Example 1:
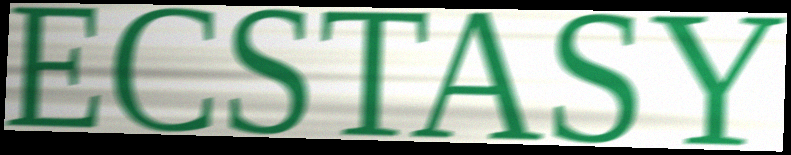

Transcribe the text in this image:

ECSTASY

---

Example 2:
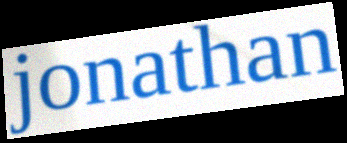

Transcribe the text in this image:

jonathan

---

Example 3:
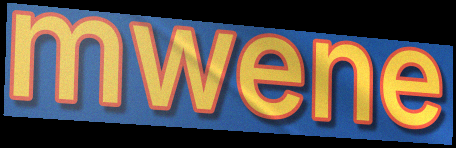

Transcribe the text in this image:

mwene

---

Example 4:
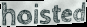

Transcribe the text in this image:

hoisted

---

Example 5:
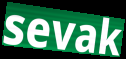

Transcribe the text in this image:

sevak